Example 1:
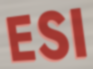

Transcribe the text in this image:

ESI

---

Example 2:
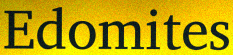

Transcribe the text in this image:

Edomites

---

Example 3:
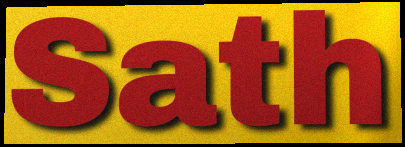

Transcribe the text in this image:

Sath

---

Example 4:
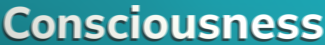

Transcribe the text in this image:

Consciousness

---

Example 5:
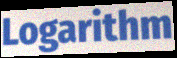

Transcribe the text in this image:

Logarithm